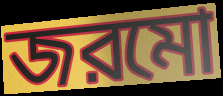
জরমো